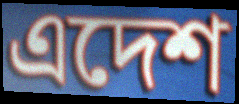
এদেশ